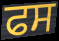
ਫਸ